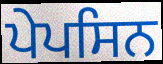
ਪੇਪਸਿਨ